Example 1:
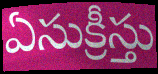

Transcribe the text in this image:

ఏసుక్రీస్తు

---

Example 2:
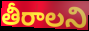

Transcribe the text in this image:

తీరాలని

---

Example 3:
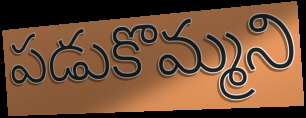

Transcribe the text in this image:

పడుకొమ్మని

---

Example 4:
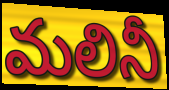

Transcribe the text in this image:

మలినీ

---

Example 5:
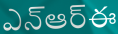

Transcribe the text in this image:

ఎన్ఆర్ఈ